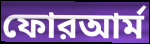
ফোরআর্ম